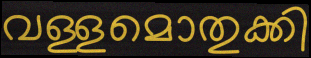
വള്ളമൊതുക്കി